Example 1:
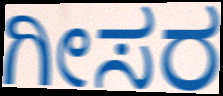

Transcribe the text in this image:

ಗೀಸರ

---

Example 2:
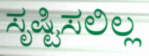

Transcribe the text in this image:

ಸೃಷ್ಟಿಸಲಿಲ್ಲ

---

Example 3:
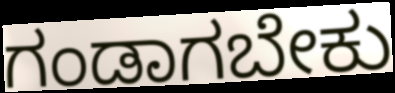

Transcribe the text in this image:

ಗಂಡಾಗಬೇಕು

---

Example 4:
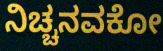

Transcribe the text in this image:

ನಿಚ್ಚನವಕೋ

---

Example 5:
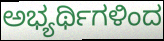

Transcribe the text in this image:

ಅಭ್ಯರ್ಥಿಗಳಿಂದ